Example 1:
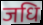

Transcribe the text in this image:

जधि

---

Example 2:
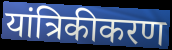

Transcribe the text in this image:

यांत्रिकीकरण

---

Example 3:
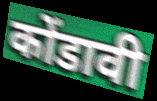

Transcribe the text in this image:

कोंडावी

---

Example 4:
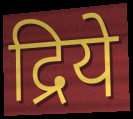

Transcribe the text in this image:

द्रिये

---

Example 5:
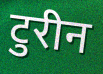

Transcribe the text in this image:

टुरीन